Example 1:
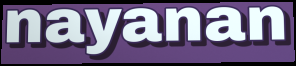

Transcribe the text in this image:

nayanan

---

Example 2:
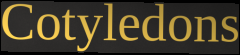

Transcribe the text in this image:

Cotyledons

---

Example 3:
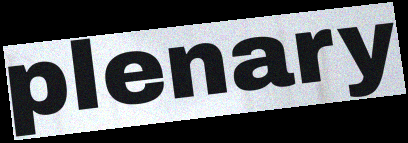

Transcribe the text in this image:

plenary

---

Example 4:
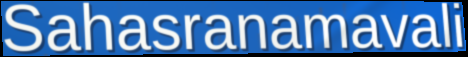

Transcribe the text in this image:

Sahasranamavali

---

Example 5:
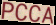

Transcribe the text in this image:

PCCA